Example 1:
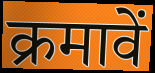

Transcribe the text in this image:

क्रमावें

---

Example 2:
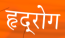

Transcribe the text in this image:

हृद्‍रोग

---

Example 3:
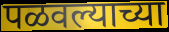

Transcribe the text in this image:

पळवल्याच्या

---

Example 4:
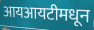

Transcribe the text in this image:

आयआयटीमधून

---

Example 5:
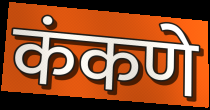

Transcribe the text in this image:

कंकणे